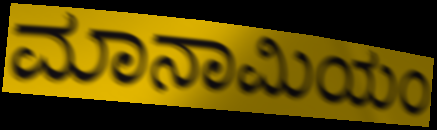
ಮಾನಾಮಿಯಂ